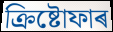
ক্ৰিষ্টোফাৰ